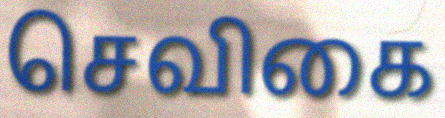
செவிகை